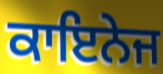
ਕਾਇਨੇਜ